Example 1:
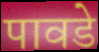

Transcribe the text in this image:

पावडे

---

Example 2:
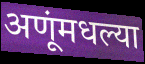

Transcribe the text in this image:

अणूंमधल्या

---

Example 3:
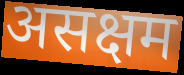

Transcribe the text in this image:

असक्षम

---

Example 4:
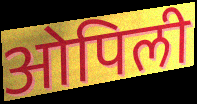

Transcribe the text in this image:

ओपिली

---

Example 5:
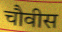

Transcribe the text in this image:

चौवीस